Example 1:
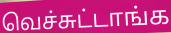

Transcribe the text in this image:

வெச்சுட்டாங்க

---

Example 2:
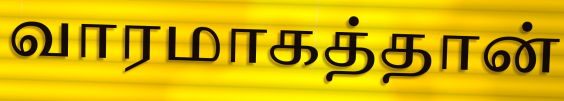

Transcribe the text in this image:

வாரமாகத்தான்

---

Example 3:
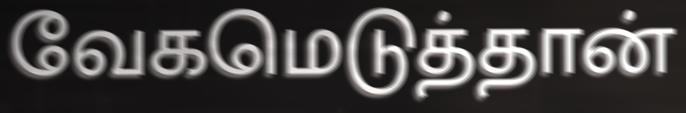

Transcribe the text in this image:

வேகமெடுத்தான்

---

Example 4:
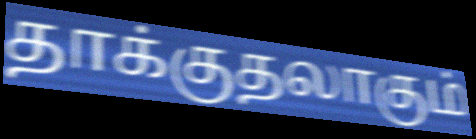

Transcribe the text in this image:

தாக்குதலாகும்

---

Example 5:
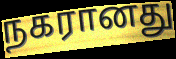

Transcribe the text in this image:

நகரானது